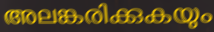
അലങ്കരിക്കുകയും